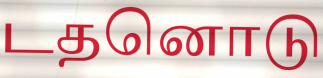
டதனொடு